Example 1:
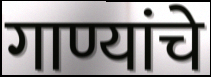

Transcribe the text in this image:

गाण्यांचे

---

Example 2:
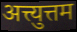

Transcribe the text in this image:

अत्त्युत्तम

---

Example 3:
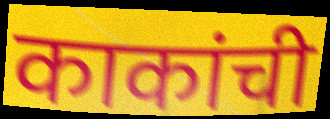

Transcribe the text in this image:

काकांची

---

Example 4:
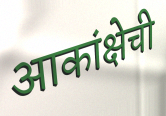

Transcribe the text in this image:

आकांक्षेची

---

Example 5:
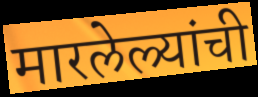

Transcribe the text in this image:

मारलेल्यांची